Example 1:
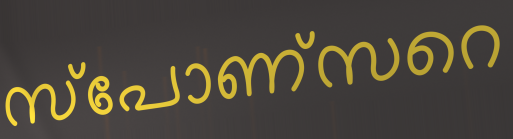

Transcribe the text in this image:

സ്പോണ്സറെ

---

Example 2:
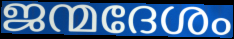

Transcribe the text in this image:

ജന്മദേശം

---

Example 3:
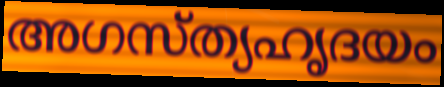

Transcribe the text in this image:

അഗസ്ത്യഹൃദയം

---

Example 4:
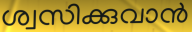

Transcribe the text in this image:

ശ്വസിക്കുവാൻ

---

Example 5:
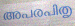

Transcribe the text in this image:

അപരപിതൃ